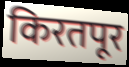
किरतपूर